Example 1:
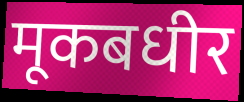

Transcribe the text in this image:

मूकबधीर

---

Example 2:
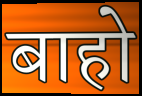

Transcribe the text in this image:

बाहो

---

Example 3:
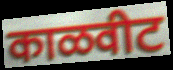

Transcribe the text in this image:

काळवीट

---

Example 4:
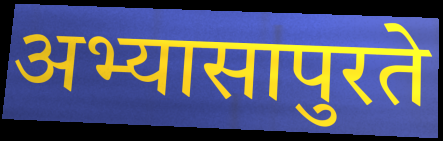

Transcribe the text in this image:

अभ्यासापुरते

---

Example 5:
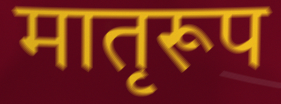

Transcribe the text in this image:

मातृरूप